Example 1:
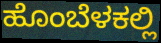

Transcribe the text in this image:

ಹೊಂಬೆಳಕಲ್ಲಿ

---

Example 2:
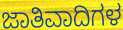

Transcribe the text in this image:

ಜಾತಿವಾದಿಗಳ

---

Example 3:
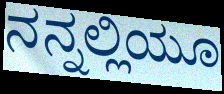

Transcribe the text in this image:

ನನ್ನಲ್ಲಿಯೂ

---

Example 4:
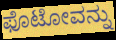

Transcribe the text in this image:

ಫೊಟೋವನ್ನು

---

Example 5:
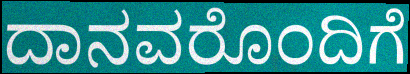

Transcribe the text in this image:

ದಾನವರೊಂದಿಗೆ